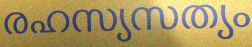
രഹസ്യസത്യം